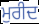
ਮੁਰੀਦ